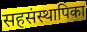
सहसंस्थापिका